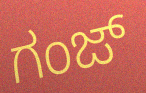
ಗಂಜ್